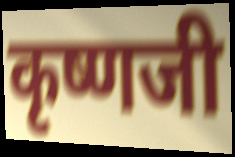
कृष्णजी